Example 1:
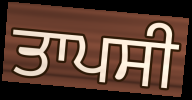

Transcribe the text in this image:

ਤਾਪਸੀ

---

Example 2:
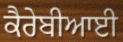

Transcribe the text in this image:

ਕੈਰੇਬੀਆਈ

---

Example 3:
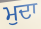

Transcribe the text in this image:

ਮੁਦਾ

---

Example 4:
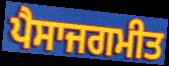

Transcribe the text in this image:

ਪੈਸਾਜਗਮੀਤ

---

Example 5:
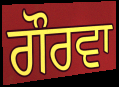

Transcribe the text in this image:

ਗੌਰਵਾ